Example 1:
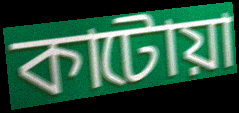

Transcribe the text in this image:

কাটোয়া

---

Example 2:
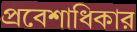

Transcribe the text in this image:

প্রবেশাধিকার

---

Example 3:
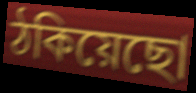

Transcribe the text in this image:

ঠকিয়েছো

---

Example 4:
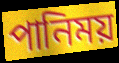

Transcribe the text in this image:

পানিময়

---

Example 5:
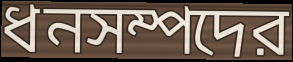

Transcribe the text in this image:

ধনসম্পদের